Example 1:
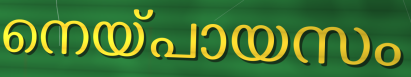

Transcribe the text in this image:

നെയ്പായസം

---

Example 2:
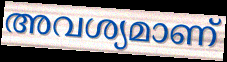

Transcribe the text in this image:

അവശ്യമാണ്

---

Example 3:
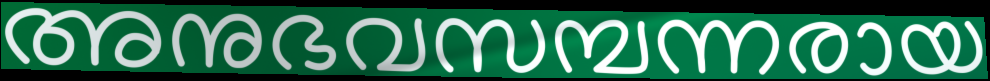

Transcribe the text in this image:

അനുഭവസമ്പന്നരായ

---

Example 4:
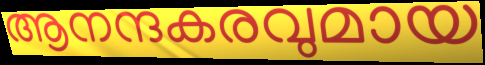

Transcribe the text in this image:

ആനന്ദകരവുമായ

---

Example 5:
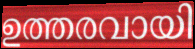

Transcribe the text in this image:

ഉത്തരവായി